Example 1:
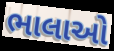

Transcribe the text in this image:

ભાલાઓ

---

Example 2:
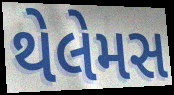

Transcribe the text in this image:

થેલેમસ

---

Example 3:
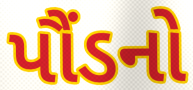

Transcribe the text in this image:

પૌંડનો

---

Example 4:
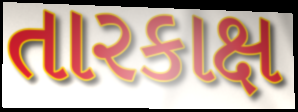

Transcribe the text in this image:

તારકાક્ષ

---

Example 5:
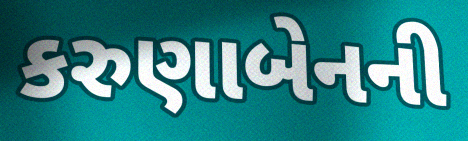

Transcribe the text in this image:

કરુણાબેનની